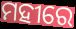
ମହୀରେ